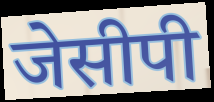
जेसीपी